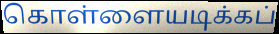
கொள்ளையடிக்கப்